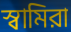
স্বামিরা